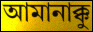
আমানাক্কু